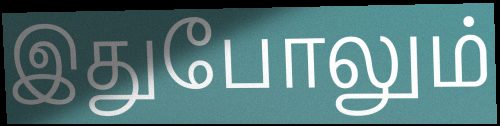
இதுபோலும்